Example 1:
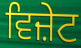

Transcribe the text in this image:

ਵਿਜ਼ੇਟ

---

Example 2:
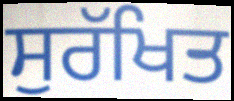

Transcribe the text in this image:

ਸੁਰੱਖਿਤ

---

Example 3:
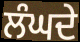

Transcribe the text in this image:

ਲੰਘਦੇ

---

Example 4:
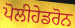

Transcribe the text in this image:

ਪੋਲੀਹੇਡਰੋਨ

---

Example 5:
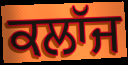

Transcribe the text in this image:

ਕਲਾੱਜ